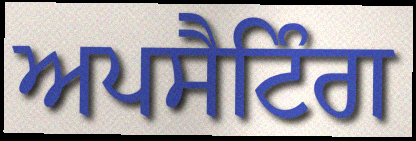
ਅਪਸੈਟਿੰਗ